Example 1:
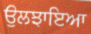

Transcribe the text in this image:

ਉਲਝਾਇਆ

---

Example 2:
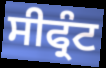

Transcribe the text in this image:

ਸੀਫ੍ਰੰਟ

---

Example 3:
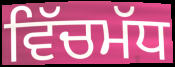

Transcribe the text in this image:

ਵਿੱਚਮੱਧ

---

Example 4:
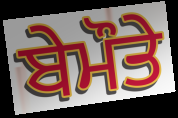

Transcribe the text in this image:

ਬੇਮੌਤੇ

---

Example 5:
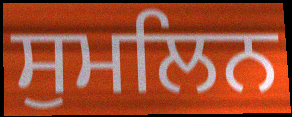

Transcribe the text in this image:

ਸੁਮਲਿਨ